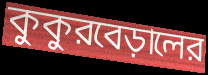
কুকুরবেড়ালের